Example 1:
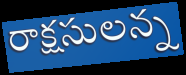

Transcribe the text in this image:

రాక్షసులన్న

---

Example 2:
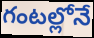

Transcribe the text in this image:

గంటల్లోనే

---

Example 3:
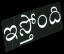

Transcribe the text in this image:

ఇస్తోంది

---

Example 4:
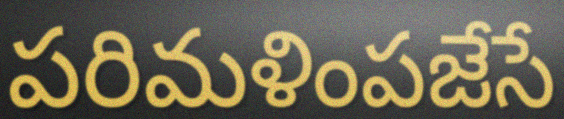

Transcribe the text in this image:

పరిమళింపజేసే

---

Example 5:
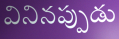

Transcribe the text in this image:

వినినప్పుడు